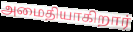
அமைதியாகிறார்